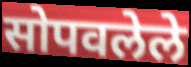
सोपवलेले